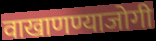
वाखाणण्याजोगी